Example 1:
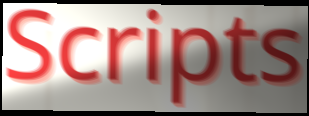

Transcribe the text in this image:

Scripts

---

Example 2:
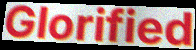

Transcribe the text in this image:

Glorified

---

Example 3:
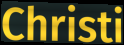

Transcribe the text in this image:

Christi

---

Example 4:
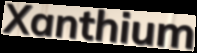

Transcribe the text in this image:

Xanthium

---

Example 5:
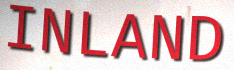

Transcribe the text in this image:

INLAND